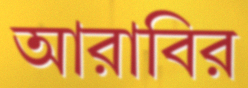
আরাবির